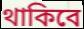
থাকিবে